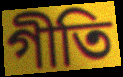
গীতি